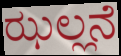
ಝಲ್ಲನೆ